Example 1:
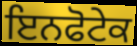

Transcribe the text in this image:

ਇਨਫੋਟੇਕ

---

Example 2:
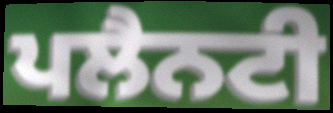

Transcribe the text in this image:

ਪਲੈਨਟੀ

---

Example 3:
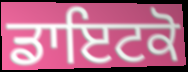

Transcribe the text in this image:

ਡਾਇਟਕੋ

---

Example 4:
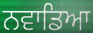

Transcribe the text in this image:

ਨਵਾਡਿਆ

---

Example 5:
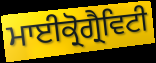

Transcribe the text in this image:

ਮਾਈਕ੍ਰੋਗ੍ਰੈਵਿਟੀ